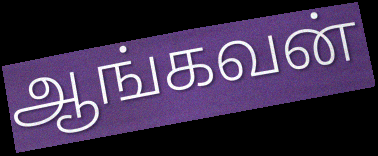
ஆங்கவன்